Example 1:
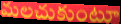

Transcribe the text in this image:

మలచుకుంటూ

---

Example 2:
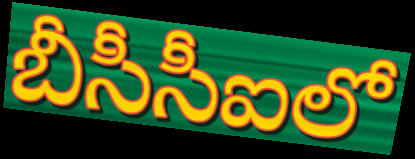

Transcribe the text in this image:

బీసీసీఐలో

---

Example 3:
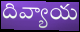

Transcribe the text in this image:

దివ్యాయ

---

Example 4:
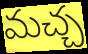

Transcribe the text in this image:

మచ్చ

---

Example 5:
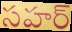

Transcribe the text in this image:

సహర్